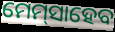
ମେମ୍‌ସାହେବ